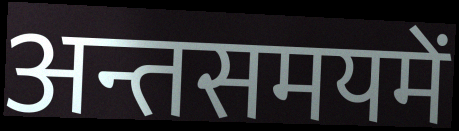
अन्तसमयमें